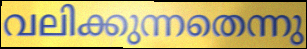
വലിക്കുന്നതെന്നു